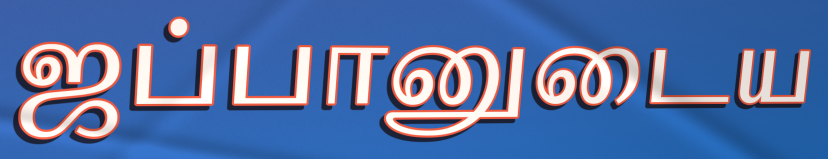
ஜப்பானுடைய